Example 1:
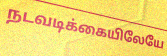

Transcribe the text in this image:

நடவடிக்கையிலேயே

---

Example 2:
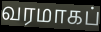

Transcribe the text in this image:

வரமாகப்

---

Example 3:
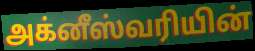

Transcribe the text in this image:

அக்னீஸ்வரியின்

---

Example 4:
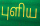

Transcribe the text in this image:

புளிய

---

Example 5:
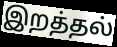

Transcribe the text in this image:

இறத்தல்